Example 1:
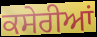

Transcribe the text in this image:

ਕਸੇਰੀਆਂ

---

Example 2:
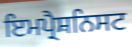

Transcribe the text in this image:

ਇਮਪ੍ਰੈਸ਼ਨਿਸਟ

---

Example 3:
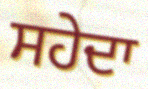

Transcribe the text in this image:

ਸਹੇਦਾ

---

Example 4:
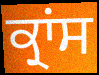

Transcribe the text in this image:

ਕ੍ਰਾਂਸ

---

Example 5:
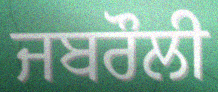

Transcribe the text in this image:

ਜਬਰੌਲੀ